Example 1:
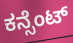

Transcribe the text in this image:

ಕನ್ಸೆಂಟ್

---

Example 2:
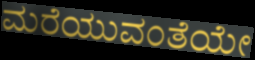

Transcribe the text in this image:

ಮರೆಯುವಂತೆಯೇ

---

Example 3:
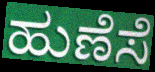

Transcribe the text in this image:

ಹುಣೆಸೆ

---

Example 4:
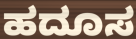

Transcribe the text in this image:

ಹದೂಸ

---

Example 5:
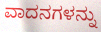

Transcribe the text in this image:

ವಾದನಗಳನ್ನು